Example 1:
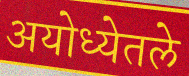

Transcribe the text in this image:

अयोध्येतले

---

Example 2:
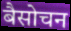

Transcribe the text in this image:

बैसोचन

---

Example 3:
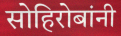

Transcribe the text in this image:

सोहिरोबांनी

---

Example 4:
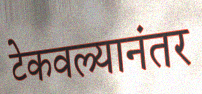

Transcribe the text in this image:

टेकवल्यानंतर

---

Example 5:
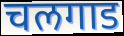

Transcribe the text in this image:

चलगाड